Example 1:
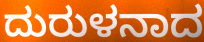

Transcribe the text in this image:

ದುರುಳನಾದ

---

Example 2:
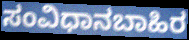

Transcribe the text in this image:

ಸಂವಿಧಾನಬಾಹಿರ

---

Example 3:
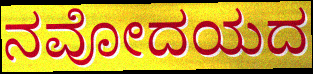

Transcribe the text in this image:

ನವೋದಯದ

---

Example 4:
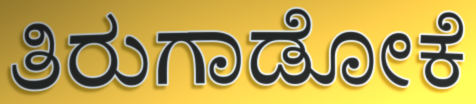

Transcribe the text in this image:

ತಿರುಗಾಡೋಕೆ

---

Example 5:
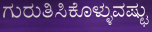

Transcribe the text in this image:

ಗುರುತಿಸಿಕೊಳ್ಳುವಷ್ಟು